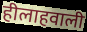
हीलाहवाली